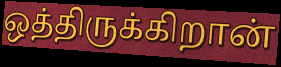
ஒத்திருக்கிறான்